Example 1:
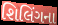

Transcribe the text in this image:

શિલિંગના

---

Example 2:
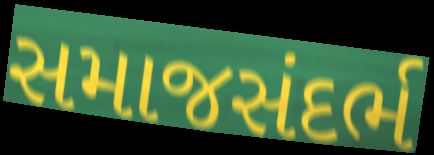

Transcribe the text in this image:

સમાજસંદર્ભ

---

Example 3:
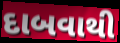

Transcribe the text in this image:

દાબવાથી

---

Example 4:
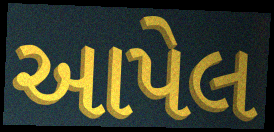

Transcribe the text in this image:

આપેલ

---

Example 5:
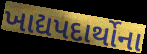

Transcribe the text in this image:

ખાદ્યપદાર્થોના